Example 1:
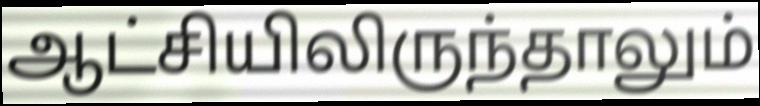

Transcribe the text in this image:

ஆட்சியிலிருந்தாலும்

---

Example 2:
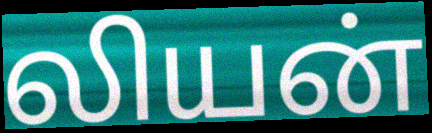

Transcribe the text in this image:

லியன்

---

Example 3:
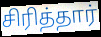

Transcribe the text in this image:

சிரித்தார்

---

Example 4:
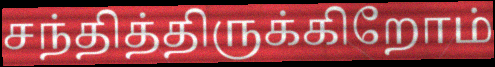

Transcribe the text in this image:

சந்தித்திருக்கிறோம்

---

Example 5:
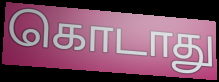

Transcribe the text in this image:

கொடாது